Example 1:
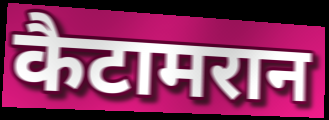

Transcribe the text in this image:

कैटामरान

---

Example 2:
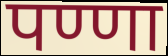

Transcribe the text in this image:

पण्णा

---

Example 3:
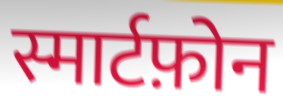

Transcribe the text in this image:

स्‍मार्टफ़ोन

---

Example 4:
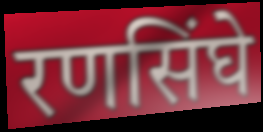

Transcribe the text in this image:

रणसिंघे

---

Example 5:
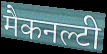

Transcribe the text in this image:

मैकनल्टी